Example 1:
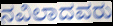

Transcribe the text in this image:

ನವಿಲಾದವರು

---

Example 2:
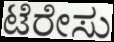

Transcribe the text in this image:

ಟೆರೇಸು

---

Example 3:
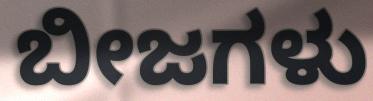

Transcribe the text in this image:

ಬೀಜಗಳು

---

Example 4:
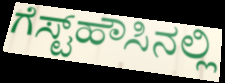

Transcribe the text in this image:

ಗೆಸ್ಟ್‌ಹೌಸಿನಲ್ಲಿ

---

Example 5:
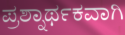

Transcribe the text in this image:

ಪ್ರಶ್ನಾರ್ಥಕವಾಗಿ